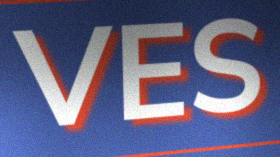
VES